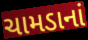
ચામડાનાં